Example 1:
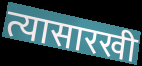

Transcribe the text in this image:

त्यासारखी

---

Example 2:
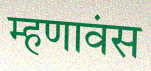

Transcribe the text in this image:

म्हणावंस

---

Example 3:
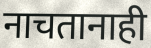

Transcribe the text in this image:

नाचतानाही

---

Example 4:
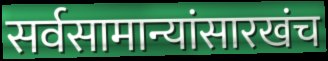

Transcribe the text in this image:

सर्वसामान्यांसारखंच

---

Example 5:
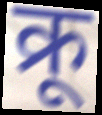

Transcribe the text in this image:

क्रू